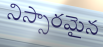
నిస్సారమైన